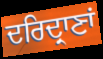
ਦਰਿਦ੍ਰਾਣਾਂ